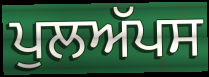
ਪੁਲਅੱਪਸ